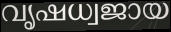
വൃഷധ്വജായ